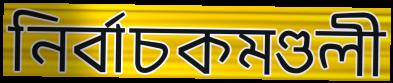
নির্বাচকমণ্ডলী